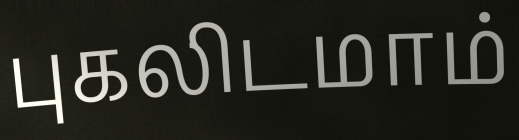
புகலிடமாம்